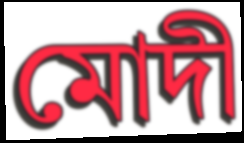
মোদী